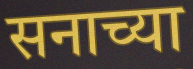
सनाच्या